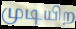
முடியிற